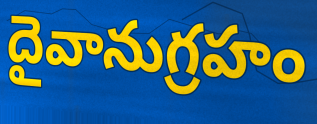
దైవానుగ్రహం